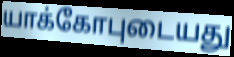
யாக்கோபுடையது